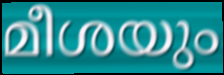
മീശയും